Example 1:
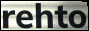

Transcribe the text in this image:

rehto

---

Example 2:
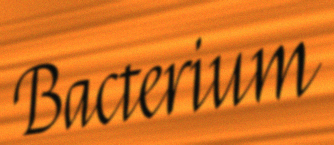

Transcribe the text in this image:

Bacterium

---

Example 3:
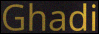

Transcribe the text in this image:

Ghadi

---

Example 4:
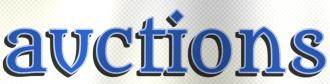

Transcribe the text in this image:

auctions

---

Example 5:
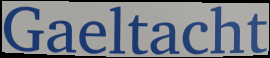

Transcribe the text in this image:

Gaeltacht